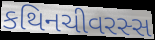
કથિનચીવરસ્સ